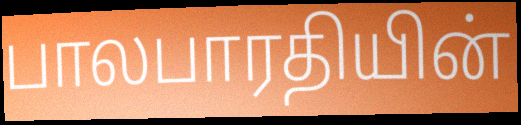
பாலபாரதியின்